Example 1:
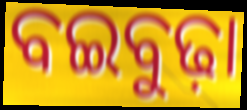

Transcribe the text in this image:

ବଇବୁଢ଼ା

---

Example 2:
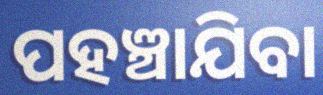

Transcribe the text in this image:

ପହଞ୍ଚାଯିବା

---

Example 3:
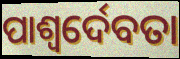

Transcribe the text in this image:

ପାଶ୍ୱର୍ଦେବତା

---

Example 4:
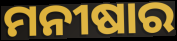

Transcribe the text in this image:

ମନୀଷାର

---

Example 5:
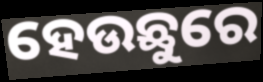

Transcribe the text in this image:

ହେଉଛୁରେ